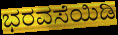
ಭರವಸೆಯಿಡಿ